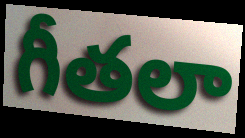
గీతలా